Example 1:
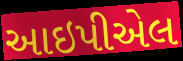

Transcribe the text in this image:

આઇપીએલ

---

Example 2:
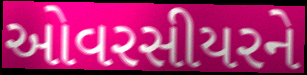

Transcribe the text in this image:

ઓવરસીયરને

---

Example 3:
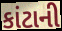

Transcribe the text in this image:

કાંટાની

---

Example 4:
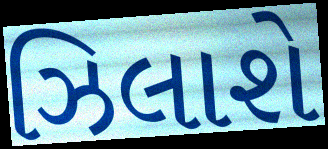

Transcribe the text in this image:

ઝિલાશે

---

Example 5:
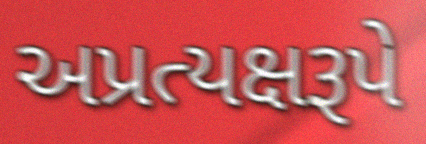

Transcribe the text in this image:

અપ્રત્યક્ષરૂપે